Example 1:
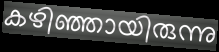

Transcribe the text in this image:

കഴിഞ്ഞായിരുന്നു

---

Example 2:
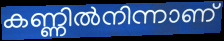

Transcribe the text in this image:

കണ്ണിൽനിന്നാണ്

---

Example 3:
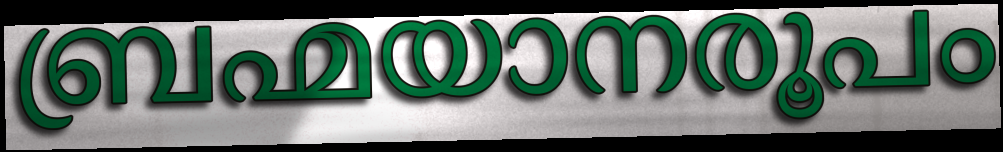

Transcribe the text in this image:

ബ്രഹ്മയാനരൂപം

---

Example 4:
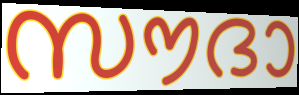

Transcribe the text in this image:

സൗദാ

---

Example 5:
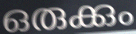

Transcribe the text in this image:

ഒരുക്കും